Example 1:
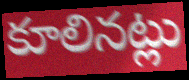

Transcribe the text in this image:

కూలినట్లు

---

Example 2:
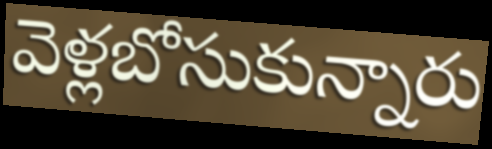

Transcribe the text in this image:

వెళ్లబోసుకున్నారు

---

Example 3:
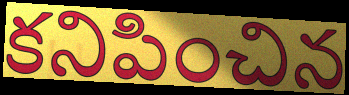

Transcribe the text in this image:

కనిపించిన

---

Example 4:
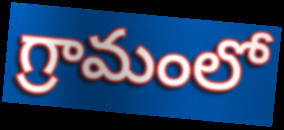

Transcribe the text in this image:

గ్రామంలో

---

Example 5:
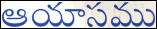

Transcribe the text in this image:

ఆయాసము